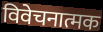
विवेचनात्मक